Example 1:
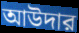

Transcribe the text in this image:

আউদার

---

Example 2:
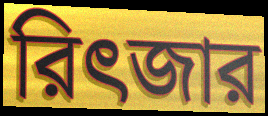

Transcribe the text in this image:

রিৎজার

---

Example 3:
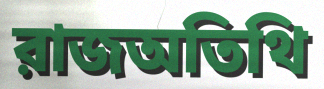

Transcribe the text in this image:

রাজঅতিথি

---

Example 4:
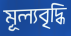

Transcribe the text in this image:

মূল্যবৃদ্ধি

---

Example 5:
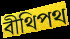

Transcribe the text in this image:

বীথিপথ